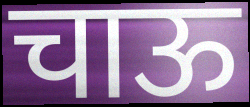
चाऊ